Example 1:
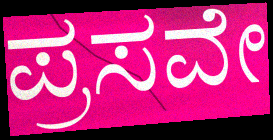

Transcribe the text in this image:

ಪ್ರಸವೇ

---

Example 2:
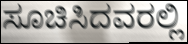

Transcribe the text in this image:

ಸೂಚಿಸಿದವರಲ್ಲಿ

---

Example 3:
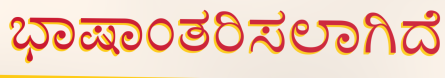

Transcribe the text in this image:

ಭಾಷಾಂತರಿಸಲಾಗಿದೆ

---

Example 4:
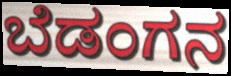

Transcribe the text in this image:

ಬೆಡಂಗನ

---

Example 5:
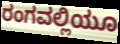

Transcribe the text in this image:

ರಂಗವಲ್ಲಿಯೂ